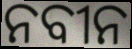
ନବୀନ